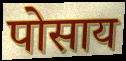
पोसाय